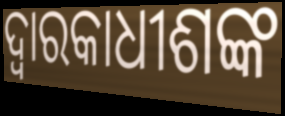
ଦ୍ୱାରକାଧୀଶଙ୍କ